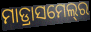
ମାଡ୍ରାସମେଲ୍‍ର